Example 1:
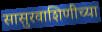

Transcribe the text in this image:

सासुरवाशिणीच्या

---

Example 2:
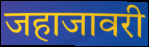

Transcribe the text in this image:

जहाजावरी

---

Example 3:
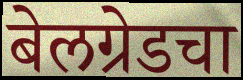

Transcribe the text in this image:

बेलग्रेडचा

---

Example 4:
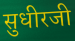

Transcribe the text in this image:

सुधीरजी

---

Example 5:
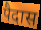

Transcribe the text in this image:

पैदास